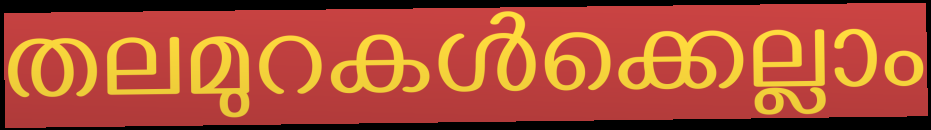
തലമുറകൾക്കെല്ലാം